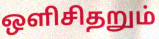
ஒளிசிதறும்